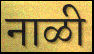
नाळी